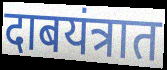
दाबयंत्रात